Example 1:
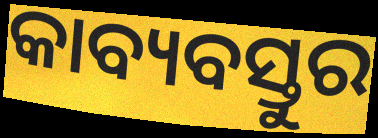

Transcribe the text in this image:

କାବ୍ୟବସ୍ତୁର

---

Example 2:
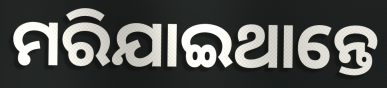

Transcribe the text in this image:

ମରିଯାଇଥାନ୍ତେ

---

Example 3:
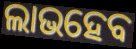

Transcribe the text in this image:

ଲାଭହେବ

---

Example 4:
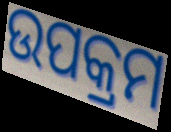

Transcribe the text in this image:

ଉପକ୍ରମ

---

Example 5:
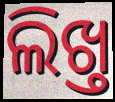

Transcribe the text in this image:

ଲିଖ୍ତ